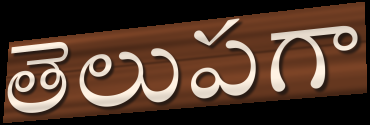
తెలుపగా